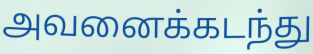
அவனைக்கடந்து